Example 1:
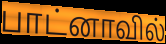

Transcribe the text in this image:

பாட்னாவில்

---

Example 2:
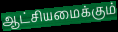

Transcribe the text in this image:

ஆட்சியமைக்கும்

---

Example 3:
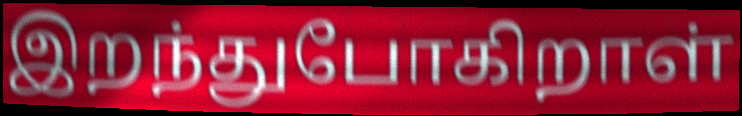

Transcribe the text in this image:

இறந்துபோகிறாள்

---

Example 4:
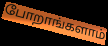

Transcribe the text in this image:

போறாங்களாம்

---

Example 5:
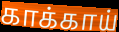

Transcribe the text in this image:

காக்காய்